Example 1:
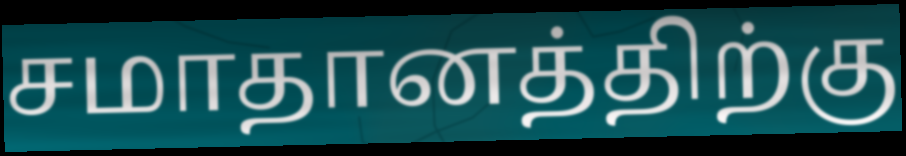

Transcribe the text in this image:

சமாதானத்திற்கு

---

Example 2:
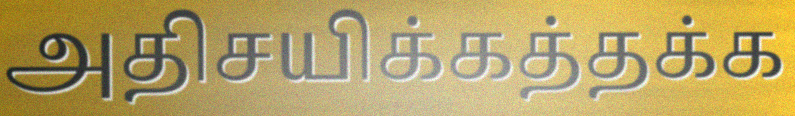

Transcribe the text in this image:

அதிசயிக்கத்தக்க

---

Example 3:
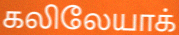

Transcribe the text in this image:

கலிலேயாக்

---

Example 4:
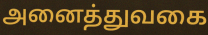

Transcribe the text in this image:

அனைத்துவகை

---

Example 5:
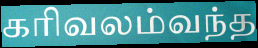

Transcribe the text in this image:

கரிவலம்வந்த